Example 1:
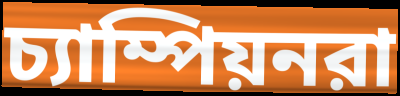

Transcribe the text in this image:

চ্যাম্পিয়নরা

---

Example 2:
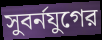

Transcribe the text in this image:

সুবর্নযুগের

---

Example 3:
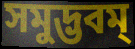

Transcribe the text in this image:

সমুদ্ভবম্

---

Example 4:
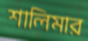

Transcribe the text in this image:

শালিমার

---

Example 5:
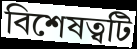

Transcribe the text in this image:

বিশেষত্বটি